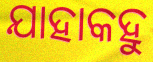
ଯାହାକହୁ